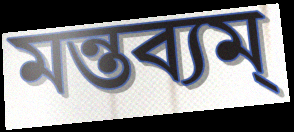
মন্তব্যম্